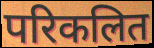
परिकलित